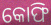
କୋଫି